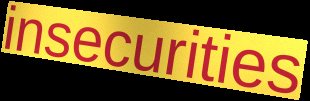
insecurities